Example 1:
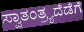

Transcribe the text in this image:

ಸ್ವಾತಂತ್ರ್ಯದೆಡೆಗೆ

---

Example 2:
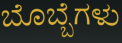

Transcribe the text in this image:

ಬೊಬ್ಬೆಗಳು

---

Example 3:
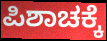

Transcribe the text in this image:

ಪಿಶಾಚಕ್ಕೆ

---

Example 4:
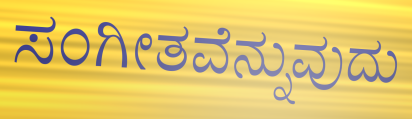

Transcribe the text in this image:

ಸಂಗೀತವೆನ್ನುವುದು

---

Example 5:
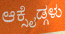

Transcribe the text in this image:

ಆಕ್ಸೈಡ್ಗಳು